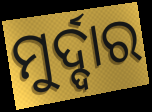
ମୁର୍ଦ୍ଦାର